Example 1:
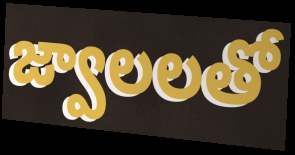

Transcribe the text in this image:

జ్వాలలతో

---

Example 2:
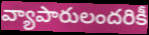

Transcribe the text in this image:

వ్యాపారులందరికీ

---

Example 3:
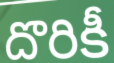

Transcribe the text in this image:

దొరికీ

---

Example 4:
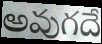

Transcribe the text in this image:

అవుగదే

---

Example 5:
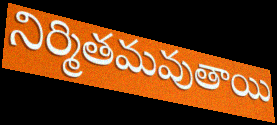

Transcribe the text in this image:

నిర్మితమవుతాయి